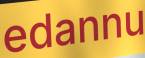
edannu